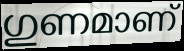
ഗുണമാണ്